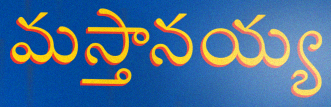
మస్తానయ్య